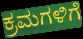
ಕ್ರಮಗಳಿಗೆ